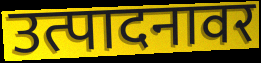
उत्पादनावर